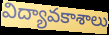
విద్యావకాశాలు